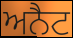
ਅਨੈਟ